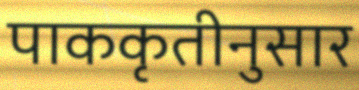
पाककृतीनुसार